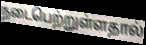
நடைபெற்றுள்ளதால்